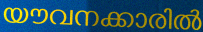
യൗവനക്കാരിൽ